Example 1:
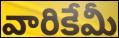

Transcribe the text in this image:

వారికేమీ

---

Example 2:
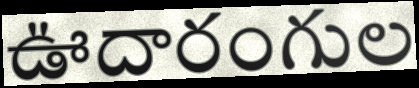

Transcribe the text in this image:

ఊదారంగుల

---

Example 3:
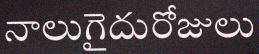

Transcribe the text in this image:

నాలుగైదురోజులు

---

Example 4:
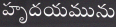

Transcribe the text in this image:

హృదయమును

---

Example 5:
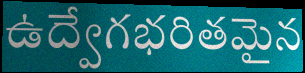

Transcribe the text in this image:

ఉద్వేగభరితమైన